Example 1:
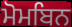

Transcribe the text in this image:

ਮੋਮਬਿਨ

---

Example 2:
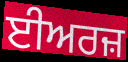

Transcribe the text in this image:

ਈਅਰਜ਼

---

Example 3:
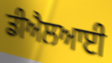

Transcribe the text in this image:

ਡੀਐਲਆਈ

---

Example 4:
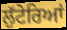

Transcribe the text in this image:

ਲੁੱਟੇਰਿਆਂ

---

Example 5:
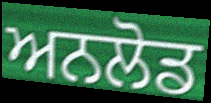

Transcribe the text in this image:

ਅਨਲੋਡ